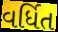
વર્ધિત